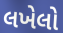
લખેલો